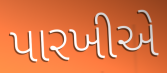
પારખીએ